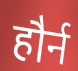
हौर्न